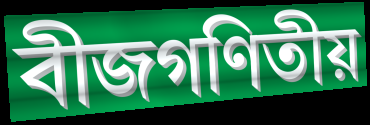
বীজগণিতীয়